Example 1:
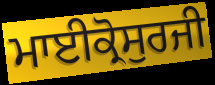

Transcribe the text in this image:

ਮਾਈਕ੍ਰੋਸੁਰਜੀ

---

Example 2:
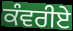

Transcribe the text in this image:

ਕੰਵਰੀਏ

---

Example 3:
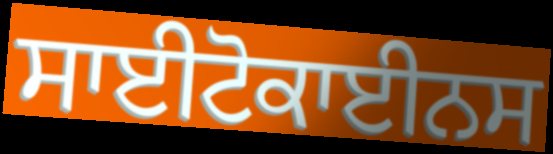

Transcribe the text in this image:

ਸਾਈਟੋਕਾਈਨਸ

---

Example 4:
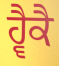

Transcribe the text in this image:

ਹ੍ਵੈਕੈ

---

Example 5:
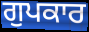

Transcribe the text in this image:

ਗੁਪਕਾਰ